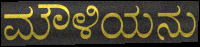
ಮೌಳಿಯನು